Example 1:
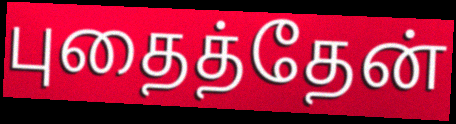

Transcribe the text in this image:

புதைத்தேன்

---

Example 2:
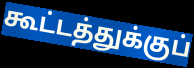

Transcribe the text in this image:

கூட்டத்துக்குப்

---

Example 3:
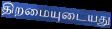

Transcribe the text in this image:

திறமையுடையது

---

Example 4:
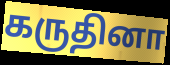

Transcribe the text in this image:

கருதினா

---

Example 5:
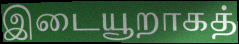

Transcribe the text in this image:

இடையூறாகத்